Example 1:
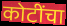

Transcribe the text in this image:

कोटींचा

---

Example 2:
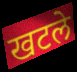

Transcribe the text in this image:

खटले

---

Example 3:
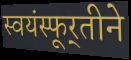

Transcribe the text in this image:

स्वयंस्फूर्तीने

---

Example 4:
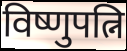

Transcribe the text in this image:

विष्णुपत्नि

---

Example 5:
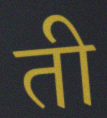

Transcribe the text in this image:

ती